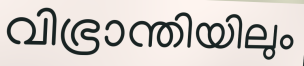
വിഭ്രാന്തിയിലും